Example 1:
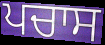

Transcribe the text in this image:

ਪਚਾਸ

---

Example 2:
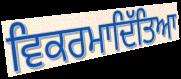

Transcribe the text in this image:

ਵਿਕਰਮਾਦਿੱਤਿਆ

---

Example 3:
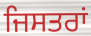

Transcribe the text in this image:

ਜਿਸਤਰਾਂ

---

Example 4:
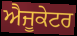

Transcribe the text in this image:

ਐਜੂਕੇਟਰ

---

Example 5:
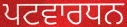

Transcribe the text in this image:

ਪਟਵਾਰਧਨ